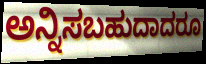
ಅನ್ನಿಸಬಹುದಾದರೂ